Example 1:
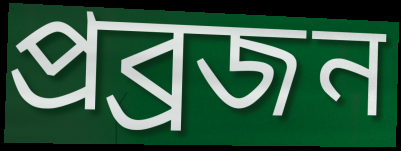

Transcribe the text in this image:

প্রব্রজন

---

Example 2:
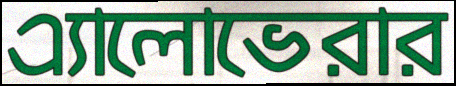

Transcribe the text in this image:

এ্যালোভেরার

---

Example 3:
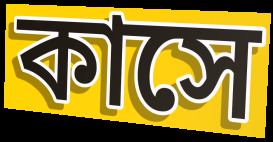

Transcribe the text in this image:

কাসে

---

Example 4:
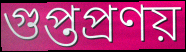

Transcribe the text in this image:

গুপ্তপ্রণয়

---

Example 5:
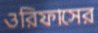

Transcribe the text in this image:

ওরিফাসের